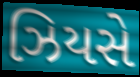
ઝિયસે